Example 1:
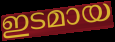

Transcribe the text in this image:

ഇടമായ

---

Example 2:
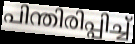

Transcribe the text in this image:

പിന്തിരിപ്പിച്ച്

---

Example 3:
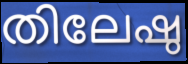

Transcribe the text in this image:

തിലേഷു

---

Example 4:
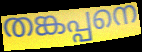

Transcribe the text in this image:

തങ്കപ്പനെ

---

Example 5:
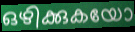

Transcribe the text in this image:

ഒഴിക്കുകയോ